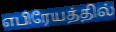
எபிரேயத்தில்